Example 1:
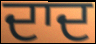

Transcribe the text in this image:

ਦਾਦ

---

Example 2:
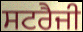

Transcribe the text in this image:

ਸਟਰੈਜੀ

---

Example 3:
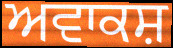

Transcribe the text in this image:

ਅਵਾਕਸ਼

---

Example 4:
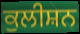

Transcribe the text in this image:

ਕੁਲੀਸ਼ਨ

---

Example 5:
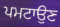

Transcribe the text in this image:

ਪਮਟਾਉਣ